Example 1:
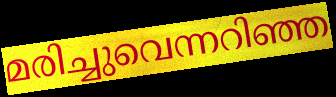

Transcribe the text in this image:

മരിച്ചുവെന്നറിഞ്ഞ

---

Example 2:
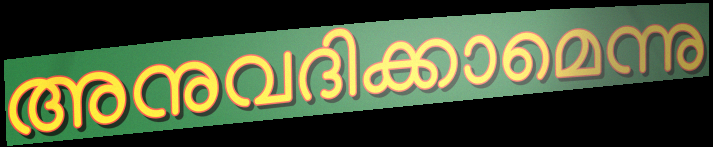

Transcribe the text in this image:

അനുവദിക്കാമെന്നു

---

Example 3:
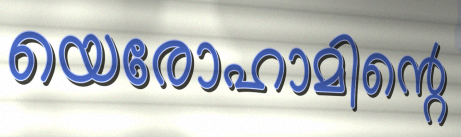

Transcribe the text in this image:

യെരോഹാമിന്റെ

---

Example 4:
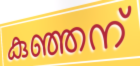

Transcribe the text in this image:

കുഞ്ഞന്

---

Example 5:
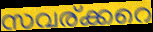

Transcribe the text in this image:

സവര്ക്കറെ